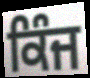
ਕਿੰਜ